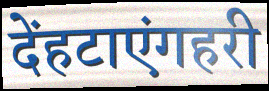
देंहटाएंगहरी